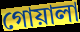
গোয়ালা